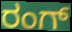
ರಂಗ್